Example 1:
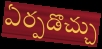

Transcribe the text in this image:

ఏర్పడొచ్చు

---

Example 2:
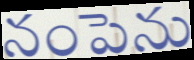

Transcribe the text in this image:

నంపెను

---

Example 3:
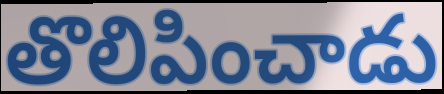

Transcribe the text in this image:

తొలిపించాడు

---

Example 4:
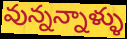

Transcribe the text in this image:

వున్నన్నాళ్ళు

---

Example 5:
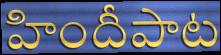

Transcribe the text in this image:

హిందీపాట